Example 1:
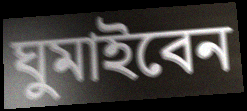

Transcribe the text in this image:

ঘুমাইবেন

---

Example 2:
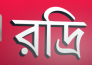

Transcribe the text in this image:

রদ্রি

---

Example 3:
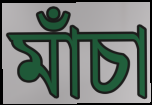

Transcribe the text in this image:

মাঁচা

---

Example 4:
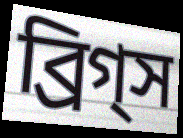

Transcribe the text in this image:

ব্রিগ্‌স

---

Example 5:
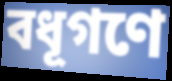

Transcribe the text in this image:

বধূগণে